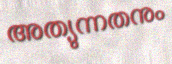
അത്യുന്നതനും